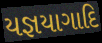
યજ્ઞયાગાદિ